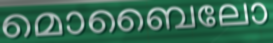
മൊബൈലോ